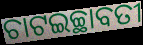
ଚାଟଇଚ୍ଛାବତୀ